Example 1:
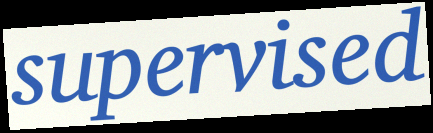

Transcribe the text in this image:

supervised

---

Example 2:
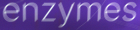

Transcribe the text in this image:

enzymes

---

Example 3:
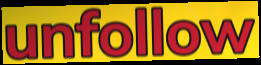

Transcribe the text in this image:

unfollow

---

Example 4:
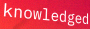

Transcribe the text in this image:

knowledged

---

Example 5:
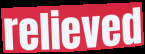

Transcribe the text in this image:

relieved